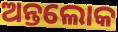
ଅନ୍ତଲୋକ